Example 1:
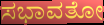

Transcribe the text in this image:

ಸಭಾವತೋ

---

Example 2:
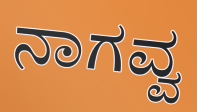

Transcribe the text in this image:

ನಾಗವ್ವ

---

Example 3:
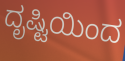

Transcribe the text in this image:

ದೃಷ್ಟಿಯಿಂದ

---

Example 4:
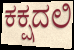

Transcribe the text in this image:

ಕಕ್ಷದಲಿ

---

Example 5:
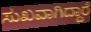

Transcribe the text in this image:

ಸುಖವಾಗಿದ್ದಾರೆ